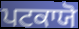
ਪਟਕਾਯੋ